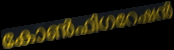
കോൺഫിഗറേഷൻ